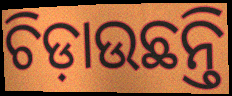
ଚିଡ଼ାଉଛନ୍ତି